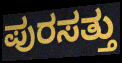
ಪುರಸತ್ತು